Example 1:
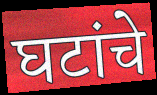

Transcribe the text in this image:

घटांचे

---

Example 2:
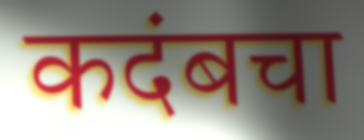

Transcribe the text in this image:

कदंबचा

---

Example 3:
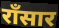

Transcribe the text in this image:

राँसार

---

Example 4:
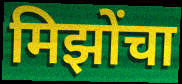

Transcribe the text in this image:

मिझोंचा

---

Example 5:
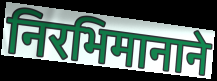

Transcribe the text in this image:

निरभिमानाने